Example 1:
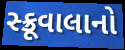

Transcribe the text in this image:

સ્ક્રૂવાલાનો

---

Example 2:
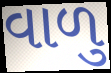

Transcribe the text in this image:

વાળુ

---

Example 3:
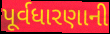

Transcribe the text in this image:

પૂર્વધારણાની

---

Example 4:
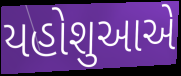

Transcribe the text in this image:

યહોશુઆએ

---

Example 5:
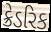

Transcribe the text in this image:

ક્રેડરિક